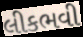
લીકભવી